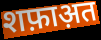
शफ़ाअ़त